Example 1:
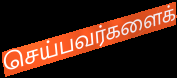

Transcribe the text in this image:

செய்பவர்களைக்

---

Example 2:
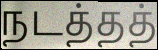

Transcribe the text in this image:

நடத்தத்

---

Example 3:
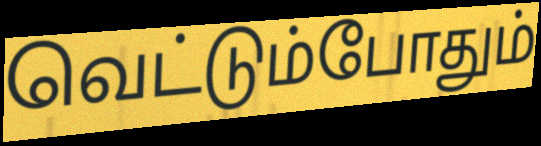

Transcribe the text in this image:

வெட்டும்போதும்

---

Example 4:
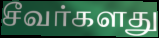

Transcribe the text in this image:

சீவர்களது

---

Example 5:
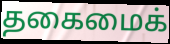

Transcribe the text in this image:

தகைமைக்